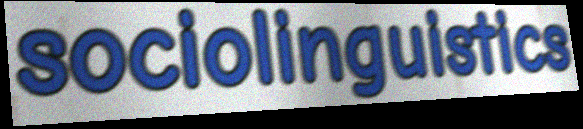
sociolinguistics